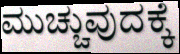
ಮುಚ್ಚುವುದಕ್ಕೆ